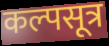
कल्पसूत्र